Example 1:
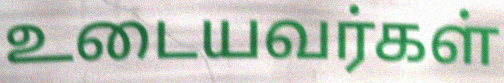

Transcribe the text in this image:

உடையவர்கள்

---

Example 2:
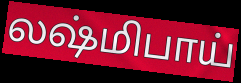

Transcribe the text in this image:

லஷ்மிபாய்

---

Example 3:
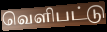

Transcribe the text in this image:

வெளிபட்டு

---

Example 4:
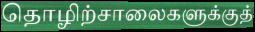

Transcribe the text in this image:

தொழிற்சாலைகளுக்குத்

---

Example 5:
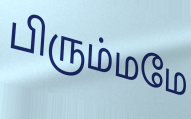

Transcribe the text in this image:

பிரும்மமே